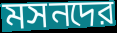
মসনদের